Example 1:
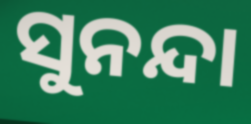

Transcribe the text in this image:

ସୁନନ୍ଦା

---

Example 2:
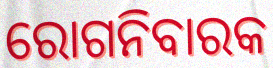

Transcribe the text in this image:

ରୋଗନିବାରକ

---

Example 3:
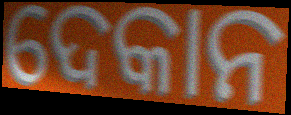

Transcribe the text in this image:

ଦେକାନ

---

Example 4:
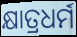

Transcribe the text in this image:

କ୍ଷାତ୍ରଧର୍ମ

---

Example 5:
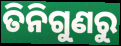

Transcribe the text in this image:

ତିନିଗୁଣରୁ